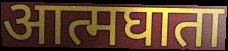
आत्मघाता